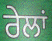
ਰੇਲਾਂ